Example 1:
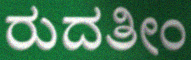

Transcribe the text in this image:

ರುದತೀಂ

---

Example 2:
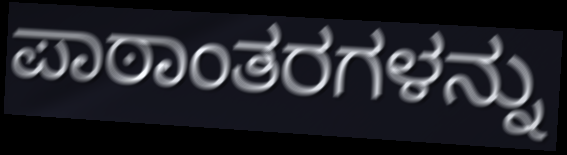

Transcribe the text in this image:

ಪಾಠಾಂತರಗಳನ್ನು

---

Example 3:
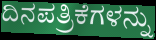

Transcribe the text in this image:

ದಿನಪತ್ರಿಕೆಗಳನ್ನು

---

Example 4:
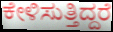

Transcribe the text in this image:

ಕೇಳಿಸುತ್ತಿದ್ದರೆ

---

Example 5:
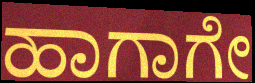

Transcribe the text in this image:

ಹಾಗಾಗೇ